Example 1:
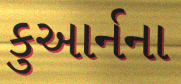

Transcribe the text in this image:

કુઆર્નના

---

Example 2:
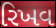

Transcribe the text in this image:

રિખવ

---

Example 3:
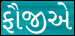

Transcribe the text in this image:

ફૌજીએ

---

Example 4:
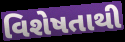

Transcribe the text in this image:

વિશેષતાથી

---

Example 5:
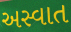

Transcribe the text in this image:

અસ્વાત